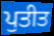
ਪੁਤੀਤ